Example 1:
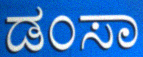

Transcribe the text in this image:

ಡಂಸಾ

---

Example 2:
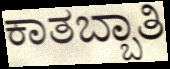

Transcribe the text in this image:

ಕಾತಬ್ಬಾತಿ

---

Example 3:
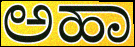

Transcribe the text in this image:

ಅಹಾ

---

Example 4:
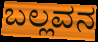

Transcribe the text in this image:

ಬಲ್ಲವನ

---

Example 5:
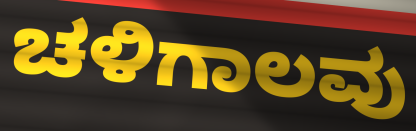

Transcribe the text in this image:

ಚಳಿಗಾಲವು